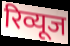
रिव्‍यूज